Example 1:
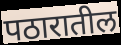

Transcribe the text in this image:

पठारातील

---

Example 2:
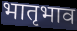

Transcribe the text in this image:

भातृभाव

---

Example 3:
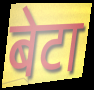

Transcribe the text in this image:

बेटा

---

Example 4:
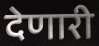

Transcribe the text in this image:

देणारी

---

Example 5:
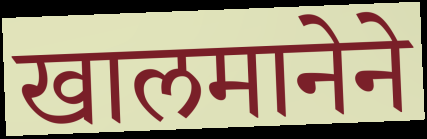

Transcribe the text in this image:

खालमानेने